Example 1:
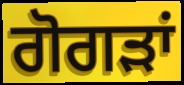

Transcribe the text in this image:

ਗੋਗੜਾਂ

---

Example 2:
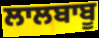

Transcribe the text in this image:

ਲਾਲਬਾਬੂ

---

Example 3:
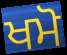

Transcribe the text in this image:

ਖਮੋ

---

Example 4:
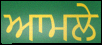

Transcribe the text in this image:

ਆਮਲੇ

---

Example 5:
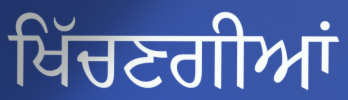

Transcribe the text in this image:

ਖਿੱਚਣਗੀਆਂ